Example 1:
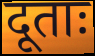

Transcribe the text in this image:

दूताः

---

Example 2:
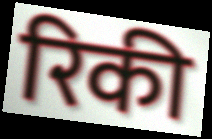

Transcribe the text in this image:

रिकी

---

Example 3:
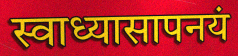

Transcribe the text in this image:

स्वाध्यासापनयं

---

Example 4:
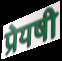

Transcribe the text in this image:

प्रेयषी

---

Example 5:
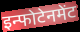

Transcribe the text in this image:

इन्फोटेनमेंट